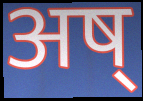
अष्